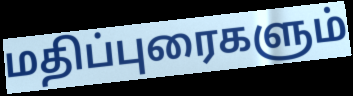
மதிப்புரைகளும்